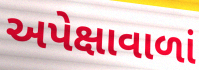
અપેક્ષાવાળાં